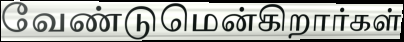
வேண்டுமென்கிறார்கள்